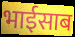
भाईसाब